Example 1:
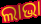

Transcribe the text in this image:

ଲାଭା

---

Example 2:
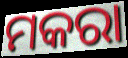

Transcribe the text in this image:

ମକରା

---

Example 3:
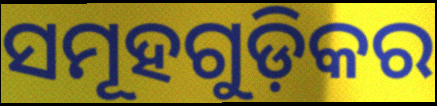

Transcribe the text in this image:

ସମୂହଗୁଡ଼ିକର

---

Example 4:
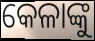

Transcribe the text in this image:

କେଳାଙ୍କୁ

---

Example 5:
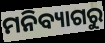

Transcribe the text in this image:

ମନିବ୍ୟାଗରୁ